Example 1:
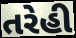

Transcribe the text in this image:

તરેહી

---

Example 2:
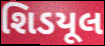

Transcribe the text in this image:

શિડયૂલ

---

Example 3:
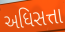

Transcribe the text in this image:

અધિસત્તા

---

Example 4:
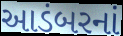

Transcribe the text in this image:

આડંબરનાં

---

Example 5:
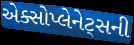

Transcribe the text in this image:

એક્સોપ્લેનેટ્સની